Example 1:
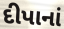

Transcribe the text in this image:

દીપાનાં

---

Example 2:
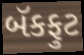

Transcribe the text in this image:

બૅકફુટ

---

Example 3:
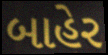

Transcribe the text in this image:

બાહેર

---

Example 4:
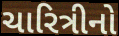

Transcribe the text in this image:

ચારિત્રીનો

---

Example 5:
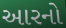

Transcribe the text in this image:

આરનો